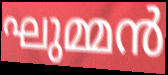
ഘുമ്മൻ